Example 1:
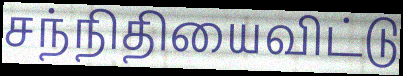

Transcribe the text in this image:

சந்நிதியைவிட்டு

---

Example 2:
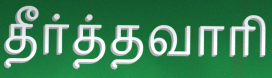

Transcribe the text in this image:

தீர்த்தவாரி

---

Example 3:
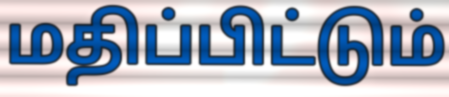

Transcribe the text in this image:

மதிப்பிட்டும்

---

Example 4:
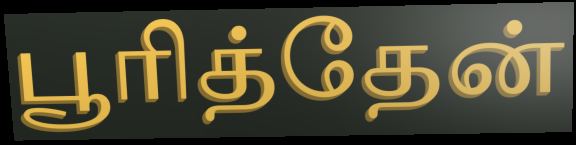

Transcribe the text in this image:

பூரித்தேன்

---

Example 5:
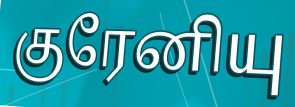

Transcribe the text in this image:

குரேனியு